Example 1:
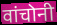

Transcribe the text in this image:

वांचोनी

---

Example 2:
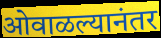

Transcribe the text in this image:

ओवाळल्यानंतर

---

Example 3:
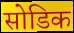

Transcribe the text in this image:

सोडिक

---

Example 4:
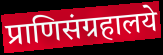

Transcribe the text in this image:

प्राणिसंग्रहालये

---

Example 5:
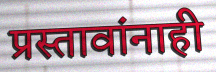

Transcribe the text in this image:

प्रस्तावांनाही